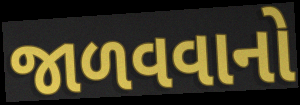
જાળવવાનો